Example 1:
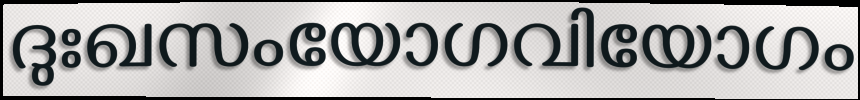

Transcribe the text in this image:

ദുഃഖസംയോഗവിയോഗം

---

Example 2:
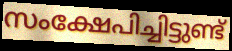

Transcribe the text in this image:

സംക്ഷേപിച്ചിട്ടുണ്ട്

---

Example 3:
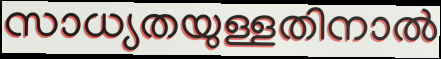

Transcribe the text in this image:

സാധ്യതയുള്ളതിനാൽ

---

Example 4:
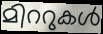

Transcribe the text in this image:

മിററുകൾ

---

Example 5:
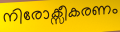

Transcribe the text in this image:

നിരോക്സീകരണം